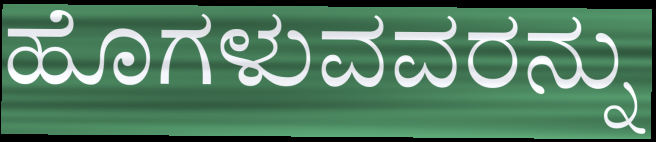
ಹೊಗಳುವವರನ್ನು